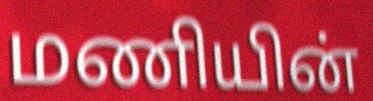
மணியின்